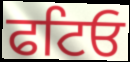
ਫਟਿਓ